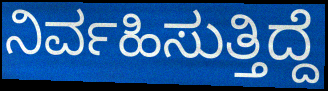
ನಿರ್ವಹಿಸುತ್ತಿದ್ದೆ